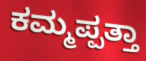
ಕಮ್ಮಪ್ಪತ್ತಾ